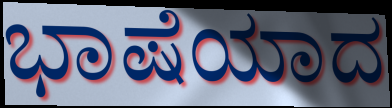
ಭಾಷೆಯಾದ